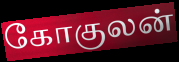
கோகுலன்